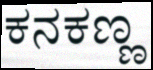
ಕನಕಣ್ಣ